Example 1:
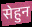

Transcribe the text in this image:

सेहुन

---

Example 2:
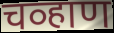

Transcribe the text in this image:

चव्हाण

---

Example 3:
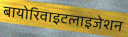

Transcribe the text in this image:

बायोरिवाइटलाइजेशन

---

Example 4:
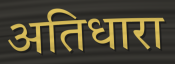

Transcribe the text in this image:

अतिधारा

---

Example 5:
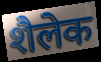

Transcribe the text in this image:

शैलेक